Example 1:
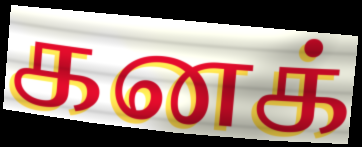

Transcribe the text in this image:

கனக்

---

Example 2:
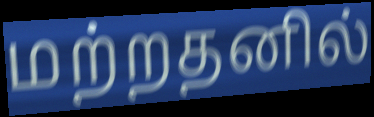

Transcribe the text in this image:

மற்றதனில்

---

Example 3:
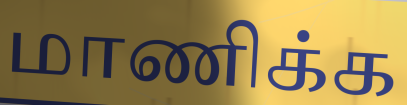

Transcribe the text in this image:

மாணிக்க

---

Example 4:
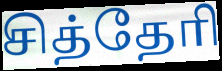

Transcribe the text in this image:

சித்தேரி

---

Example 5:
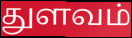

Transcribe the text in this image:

துளவம்